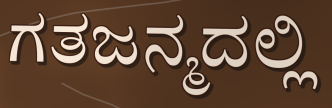
ಗತಜನ್ಮದಲ್ಲಿ